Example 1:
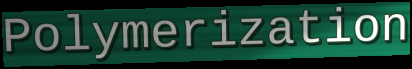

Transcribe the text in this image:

Polymerization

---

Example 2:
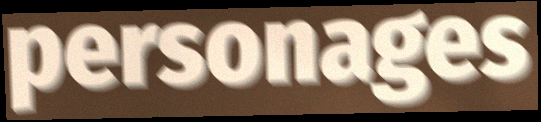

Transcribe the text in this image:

personages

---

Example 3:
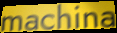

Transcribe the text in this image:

machina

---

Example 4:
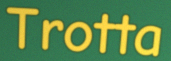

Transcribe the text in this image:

Trotta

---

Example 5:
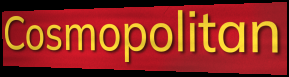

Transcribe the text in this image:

Cosmopolitan